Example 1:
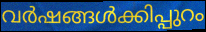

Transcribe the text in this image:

വർഷങ്ങൾക്കിപ്പുറം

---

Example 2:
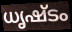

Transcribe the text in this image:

ധൃഷ്ടം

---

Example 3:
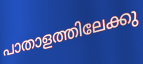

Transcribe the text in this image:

പാതാളത്തിലേക്കു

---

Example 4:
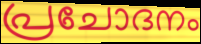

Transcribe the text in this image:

പ്രചോദനം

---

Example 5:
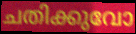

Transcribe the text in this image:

ചതിക്കുവോ